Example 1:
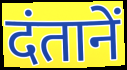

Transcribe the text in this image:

दंतानें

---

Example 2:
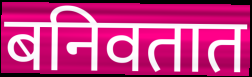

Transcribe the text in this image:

बनिवतात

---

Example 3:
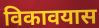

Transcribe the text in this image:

विकावयास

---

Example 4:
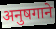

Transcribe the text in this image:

अनुषगाने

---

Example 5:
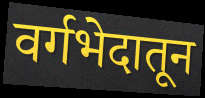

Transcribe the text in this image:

वर्गभेदातून